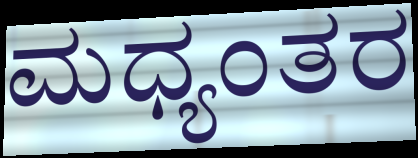
ಮಧ್ಯಂತರ